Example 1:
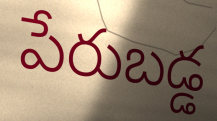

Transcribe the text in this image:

పేరుబడ్డ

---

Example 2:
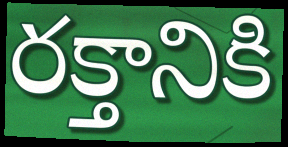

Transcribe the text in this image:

రక్తానికి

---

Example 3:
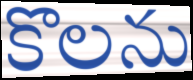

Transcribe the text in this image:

కొలను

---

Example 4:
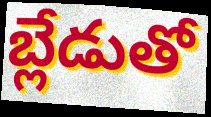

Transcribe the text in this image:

బ్లేడుతో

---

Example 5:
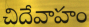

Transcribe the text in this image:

చిదేవాహం